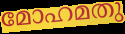
മോഹമതു